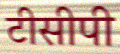
टीसीपी